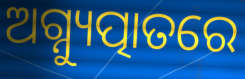
ଅଗ୍ନ୍ୟୁତ୍ପାତରେ